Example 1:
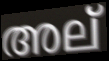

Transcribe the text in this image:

അല്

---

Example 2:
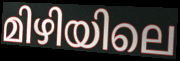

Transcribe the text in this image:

മിഴിയിലെ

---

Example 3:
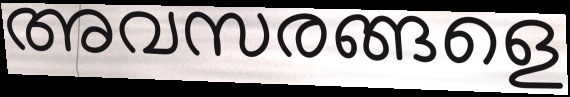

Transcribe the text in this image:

അവസരങ്ങളെ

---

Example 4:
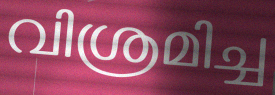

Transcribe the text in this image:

വിശ്രമിച്ച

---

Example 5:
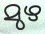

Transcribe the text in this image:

മുഴ